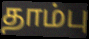
தாம்பு